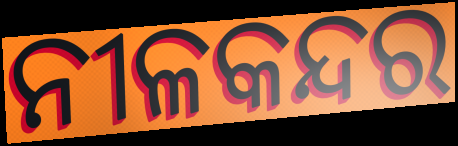
ନୀଳକନ୍ଦର